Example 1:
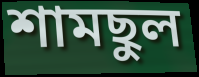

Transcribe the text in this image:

শামছুল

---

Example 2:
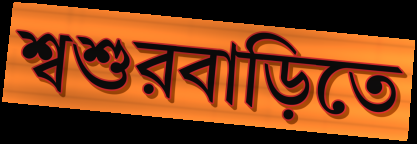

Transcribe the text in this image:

শ্বশুরবাড়িতে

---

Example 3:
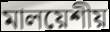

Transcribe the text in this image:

মালয়েশীয়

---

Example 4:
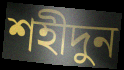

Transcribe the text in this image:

শহীদুন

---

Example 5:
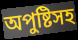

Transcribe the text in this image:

অপুষ্টিসহ